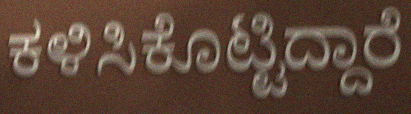
ಕಳಿಸಿಕೊಟ್ಟಿದ್ದಾರೆ